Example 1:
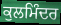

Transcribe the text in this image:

ਕੁਲਮਿੰਦਰ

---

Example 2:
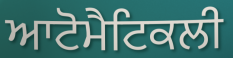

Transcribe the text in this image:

ਆਟੋਮੈਟਿਕਲੀ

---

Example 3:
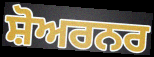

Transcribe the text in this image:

ਸ਼ੋਅਰਨਰ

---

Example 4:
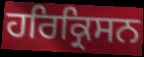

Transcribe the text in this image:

ਹਰਿਕ੍ਰਿਸਨ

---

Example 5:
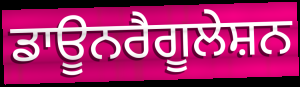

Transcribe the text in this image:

ਡਾਊਨਰੈਗੂਲੇਸ਼ਨ